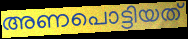
അണപൊട്ടിയത്